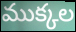
ముక్కల